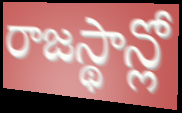
రాజస్థాన్లో